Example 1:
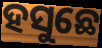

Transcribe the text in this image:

ହସୁଛେ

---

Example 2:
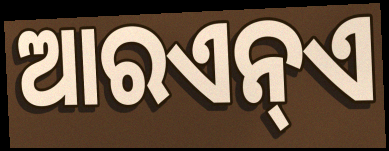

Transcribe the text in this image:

ଆରଏନ୍ଏ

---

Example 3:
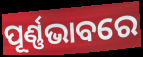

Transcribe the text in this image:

ପୂର୍ଣ୍ଣଭାବରେ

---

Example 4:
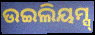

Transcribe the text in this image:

ଉଇଲିୟମ୍ସ୍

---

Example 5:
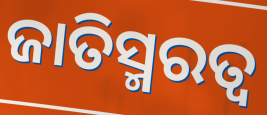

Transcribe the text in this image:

ଜାତିସ୍ମରତ୍ୱ